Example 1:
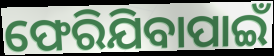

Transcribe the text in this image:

ଫେରିଯିବାପାଇଁ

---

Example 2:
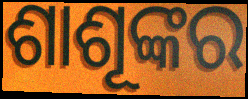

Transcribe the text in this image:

ଶାଶୂଙ୍କର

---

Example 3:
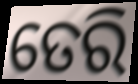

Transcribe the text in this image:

ତେରି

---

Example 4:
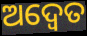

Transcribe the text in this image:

ଅଦ୍ଵେତ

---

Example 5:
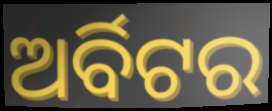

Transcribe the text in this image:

ଅର୍ବିଟର